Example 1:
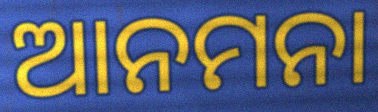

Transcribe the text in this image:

ଆନମନା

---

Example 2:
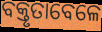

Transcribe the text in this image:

ବକ୍ତୃତାବେଳେ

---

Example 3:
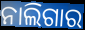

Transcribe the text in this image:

ନାଲିଗାର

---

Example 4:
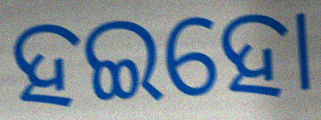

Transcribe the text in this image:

ହଇହୋ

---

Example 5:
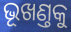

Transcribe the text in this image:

ଭୂଖଣ୍ତକୁ